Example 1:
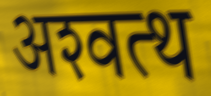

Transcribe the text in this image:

अश्वत्थ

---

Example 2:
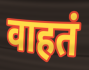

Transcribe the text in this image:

वाहतं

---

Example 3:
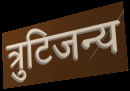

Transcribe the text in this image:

त्रुटिजन्य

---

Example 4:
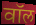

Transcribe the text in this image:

वॉल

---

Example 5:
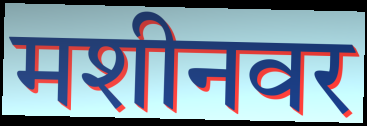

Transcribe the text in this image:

मशीनवर